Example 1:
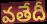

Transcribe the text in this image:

వతేదీ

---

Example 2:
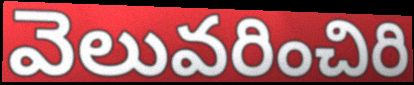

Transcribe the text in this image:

వెలువరించిరి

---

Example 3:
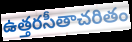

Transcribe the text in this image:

ఉత్తరసీతాచరితం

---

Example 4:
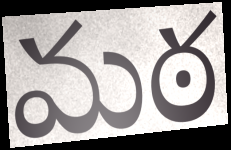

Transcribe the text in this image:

మఠ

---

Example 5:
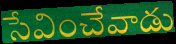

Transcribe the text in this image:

సేవించేవాడు